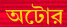
অটোর